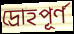
দ্রোহপূর্ণ